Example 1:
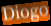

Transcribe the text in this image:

Diogo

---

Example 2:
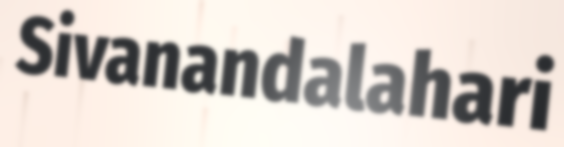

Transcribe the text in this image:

Sivanandalahari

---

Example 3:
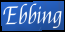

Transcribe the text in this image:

Ebbing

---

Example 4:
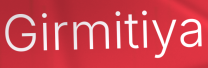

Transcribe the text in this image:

Girmitiya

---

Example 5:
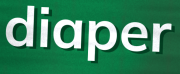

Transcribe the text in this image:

diaper